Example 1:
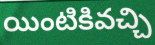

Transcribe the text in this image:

యింటికివచ్చి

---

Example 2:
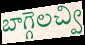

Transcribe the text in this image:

బాగ్గెలచ్వి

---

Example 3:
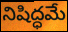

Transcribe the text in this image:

నిషిద్ధమే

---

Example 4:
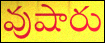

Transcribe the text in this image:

వుషారు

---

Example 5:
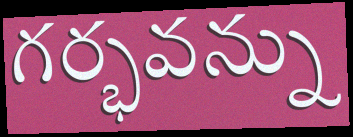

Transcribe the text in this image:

గర్భవన్ను